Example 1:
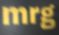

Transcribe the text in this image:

mrg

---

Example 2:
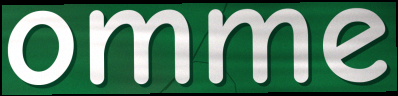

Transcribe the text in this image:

omme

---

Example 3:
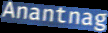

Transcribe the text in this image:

Anantnag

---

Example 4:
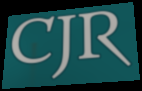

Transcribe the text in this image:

CJR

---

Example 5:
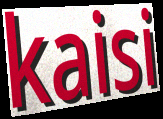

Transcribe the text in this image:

kaisi